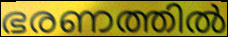
ഭരണത്തിൽ